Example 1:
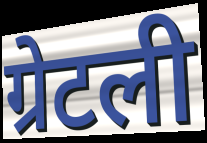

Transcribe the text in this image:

ग्रेटली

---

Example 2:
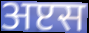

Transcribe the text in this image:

अप्टस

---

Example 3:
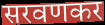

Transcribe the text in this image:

सरवणकर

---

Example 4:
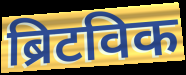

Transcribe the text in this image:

ब्रिटविक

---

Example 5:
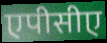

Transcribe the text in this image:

एपीसीए